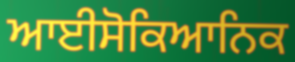
ਆਈਸੋਕਿਆਨਿਕ